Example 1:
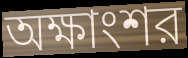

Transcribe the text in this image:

অক্ষাংশর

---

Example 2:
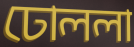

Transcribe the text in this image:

ঢোললা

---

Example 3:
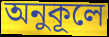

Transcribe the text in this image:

অনুকূলে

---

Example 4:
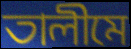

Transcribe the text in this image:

তালীমে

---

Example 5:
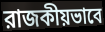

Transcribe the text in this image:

রাজকীয়ভাবে